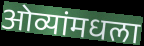
ओव्यांमधला